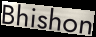
Bhishon